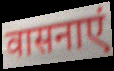
वासनाएं